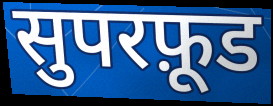
सुपरफ़ूड